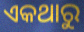
ଏକଥାରୁ